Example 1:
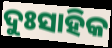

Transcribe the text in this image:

ଦୁଃସାହିକ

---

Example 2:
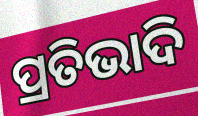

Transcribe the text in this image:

ପ୍ରତିଭାଦି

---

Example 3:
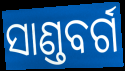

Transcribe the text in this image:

ସାଣ୍ଡବର୍ଗ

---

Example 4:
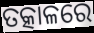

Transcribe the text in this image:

ତତ୍କାଳରେ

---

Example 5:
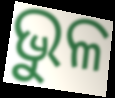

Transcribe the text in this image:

ଭୁଳ